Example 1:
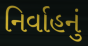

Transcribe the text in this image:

નિર્વાહનું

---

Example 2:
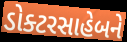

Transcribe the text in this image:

ડોક્ટરસાહેબને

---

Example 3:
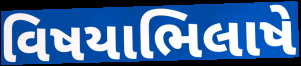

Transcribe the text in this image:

વિષયાભિલાષે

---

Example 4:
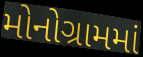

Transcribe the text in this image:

મોનોગ્રામમાં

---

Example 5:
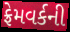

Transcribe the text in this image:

ફ્રેમવર્કની